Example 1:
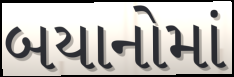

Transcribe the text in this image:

બયાનોમાં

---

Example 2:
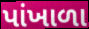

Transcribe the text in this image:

પાંખાળા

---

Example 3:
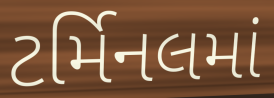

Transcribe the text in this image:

ટર્મિનલમાં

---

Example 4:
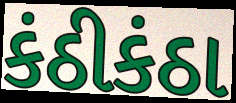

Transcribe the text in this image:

કંઠીકંઠા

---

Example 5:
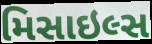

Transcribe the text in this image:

મિસાઇલ્સ